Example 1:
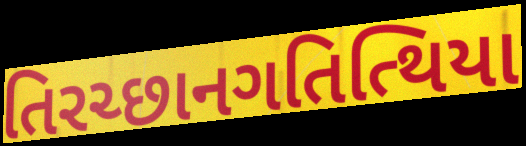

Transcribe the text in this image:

તિરચ્છાનગતિત્થિયા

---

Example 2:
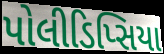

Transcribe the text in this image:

પોલીડિપ્સિયા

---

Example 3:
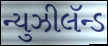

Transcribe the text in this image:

ન્યુઝીલૅન્ડ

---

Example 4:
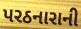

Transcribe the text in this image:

પરઠનારાની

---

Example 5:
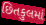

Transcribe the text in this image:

છિતકુલમાં